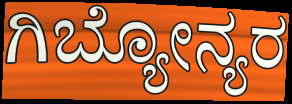
ಗಿಬ್ಯೋನ್ಯರ